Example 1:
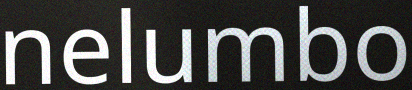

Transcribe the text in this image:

nelumbo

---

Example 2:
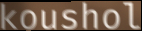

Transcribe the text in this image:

koushol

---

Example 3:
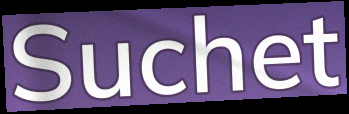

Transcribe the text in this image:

Suchet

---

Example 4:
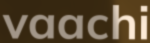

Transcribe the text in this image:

vaachi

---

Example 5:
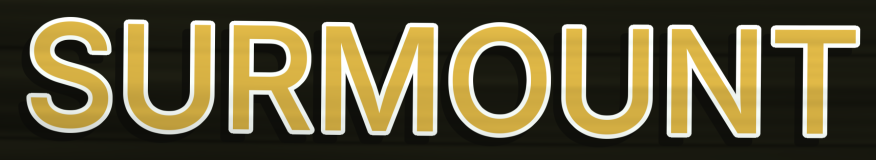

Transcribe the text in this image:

SURMOUNT